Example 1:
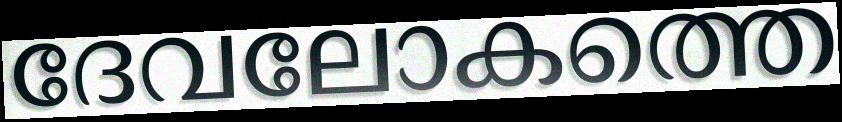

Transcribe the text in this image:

ദേവലോകത്തെ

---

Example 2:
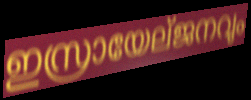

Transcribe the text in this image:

ഇസ്രായേല്ജനവും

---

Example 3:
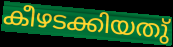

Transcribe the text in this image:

കീഴടക്കിയതു്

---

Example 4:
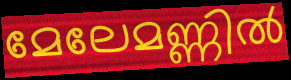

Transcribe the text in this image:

മേലേമണ്ണിൽ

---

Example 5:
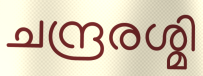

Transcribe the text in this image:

ചന്ദ്രരശ്മി